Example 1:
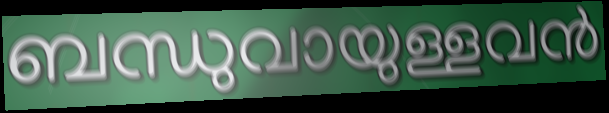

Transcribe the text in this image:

ബന്ധുവായുള്ളവൻ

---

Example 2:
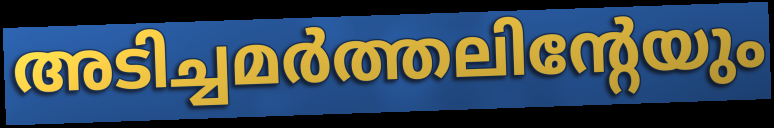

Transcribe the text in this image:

അടിച്ചമർത്തലിന്റേയും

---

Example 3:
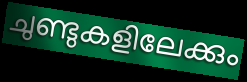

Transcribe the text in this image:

ചുണ്ടുകളിലേക്കും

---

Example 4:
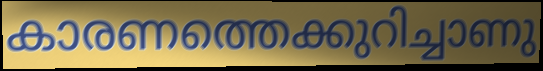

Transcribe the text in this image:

കാരണത്തെക്കുറിച്ചാണു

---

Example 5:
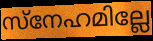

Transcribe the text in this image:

സ്നേഹമില്ലേ